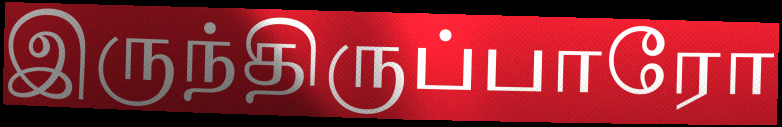
இருந்திருப்பாரோ